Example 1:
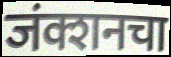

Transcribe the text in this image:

जंक्‍शनचा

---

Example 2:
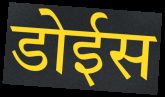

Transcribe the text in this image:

डोईस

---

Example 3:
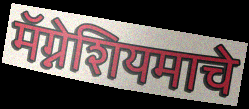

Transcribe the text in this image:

मॅग्नेशियमाचे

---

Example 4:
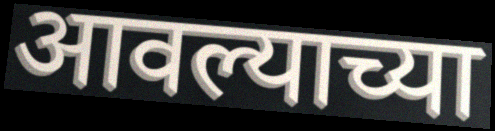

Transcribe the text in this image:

आवल्याच्या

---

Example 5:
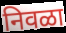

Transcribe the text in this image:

निवळा